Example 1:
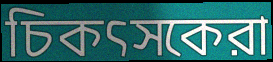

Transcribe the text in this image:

চিকৎসকেরা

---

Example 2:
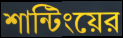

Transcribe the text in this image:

শান্টিংয়ের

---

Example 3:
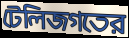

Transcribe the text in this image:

টেলিজগতের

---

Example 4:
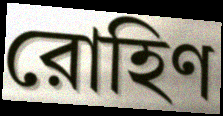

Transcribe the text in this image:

রোহিণ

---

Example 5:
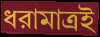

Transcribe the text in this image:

ধরামাত্রই